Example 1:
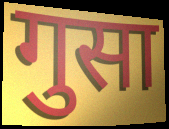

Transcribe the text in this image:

गुसा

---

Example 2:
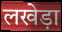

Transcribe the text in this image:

लखेड़ा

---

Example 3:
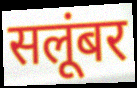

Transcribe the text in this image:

सलूंबर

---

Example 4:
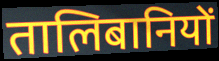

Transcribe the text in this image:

तालिबानियों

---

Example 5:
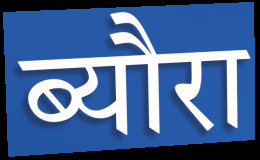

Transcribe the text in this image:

ब्‍यौरा